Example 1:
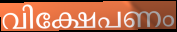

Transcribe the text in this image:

വിക്ഷേപണം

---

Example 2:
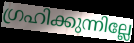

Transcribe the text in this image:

ഗ്രഹിക്കുന്നില്ലേ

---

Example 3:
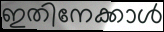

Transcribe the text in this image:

ഇതിനേക്കാൾ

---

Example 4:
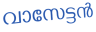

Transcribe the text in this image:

വാസേട്ടൻ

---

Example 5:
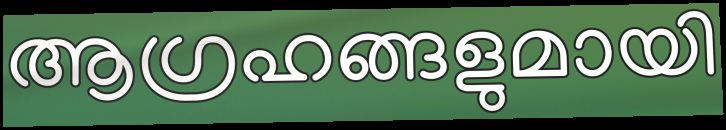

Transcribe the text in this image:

ആഗ്രഹങ്ങളുമായി